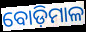
ବୋଡ଼ିମାଳ